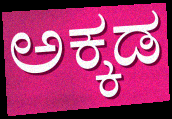
ಅಕ್ಕಡ